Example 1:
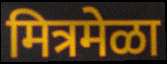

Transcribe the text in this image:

मित्रमेळा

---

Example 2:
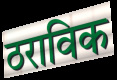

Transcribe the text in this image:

ठराविक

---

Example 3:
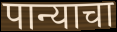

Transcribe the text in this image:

पान्याचा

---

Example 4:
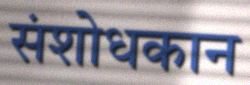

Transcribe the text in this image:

संशोधकान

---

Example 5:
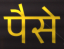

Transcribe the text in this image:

पैसे